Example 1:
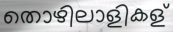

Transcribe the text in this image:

തൊഴിലാളികള്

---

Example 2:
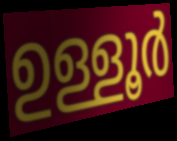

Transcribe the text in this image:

ഉള്ളൂർ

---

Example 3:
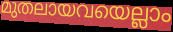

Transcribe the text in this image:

മുതലായവയെല്ലാം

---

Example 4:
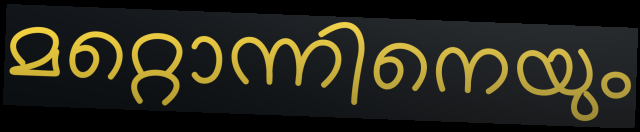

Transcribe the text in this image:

മറ്റൊന്നിനെയും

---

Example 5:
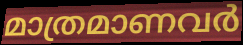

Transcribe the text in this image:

മാത്രമാണവർ